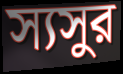
স্যসুর